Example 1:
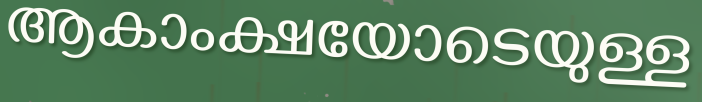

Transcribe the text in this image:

ആകാംക്ഷയോടെയുള്ള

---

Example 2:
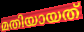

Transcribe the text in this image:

മതിയായത്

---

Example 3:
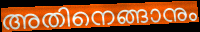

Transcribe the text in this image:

അതിനെങ്ങാനും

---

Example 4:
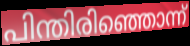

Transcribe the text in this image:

പിന്തിരിഞ്ഞൊന്ന്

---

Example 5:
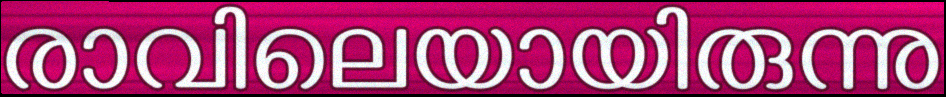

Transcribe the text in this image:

രാവിലെയായിരുന്നു